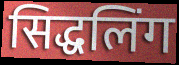
सिद्धलिंग